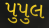
પુપુલ